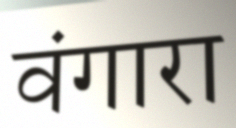
वंगारा